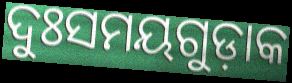
ଦୁଃସମୟଗୁଡ଼ାକ